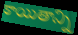
కాయితాన్ని